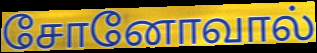
சோனோவால்